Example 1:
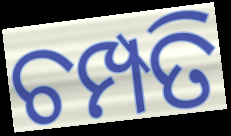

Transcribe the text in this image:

ଚମ୍ପତି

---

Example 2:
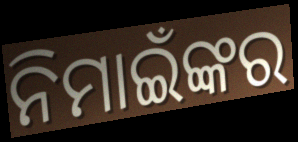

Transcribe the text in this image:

ନିମାଇଁଙ୍କର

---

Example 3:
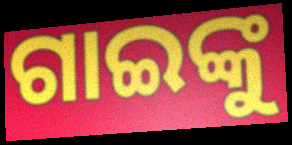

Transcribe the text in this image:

ଗାଇଙ୍କୁ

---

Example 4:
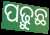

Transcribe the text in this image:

ପଢ଼ୁଛ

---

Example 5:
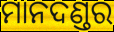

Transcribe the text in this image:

ମାନଦଣ୍ଡର